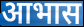
आभास